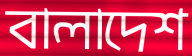
বালাদেশ